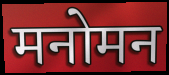
मनोमन